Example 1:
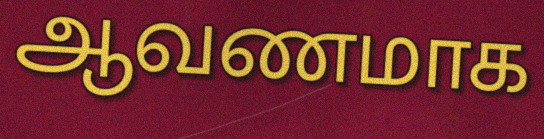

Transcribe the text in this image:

ஆவணமாக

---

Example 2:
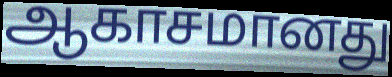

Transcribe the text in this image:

ஆகாசமானது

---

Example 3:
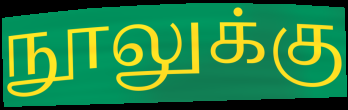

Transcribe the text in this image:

நூலுக்கு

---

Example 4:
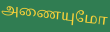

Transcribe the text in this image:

அணையுமோ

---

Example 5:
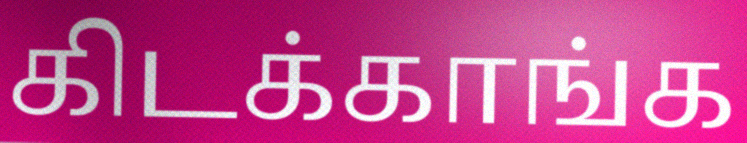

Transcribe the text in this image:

கிடக்காங்க